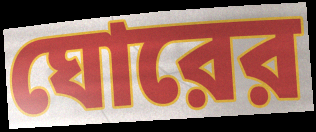
ঘোরের